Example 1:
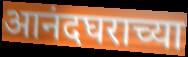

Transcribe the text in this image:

आनंदघराच्या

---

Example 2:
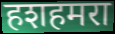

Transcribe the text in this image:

हशहमरा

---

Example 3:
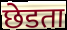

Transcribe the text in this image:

छेडता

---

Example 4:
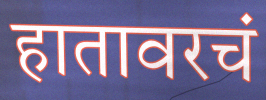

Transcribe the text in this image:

हातावरचं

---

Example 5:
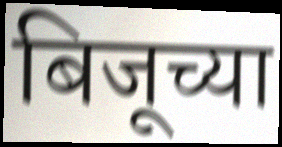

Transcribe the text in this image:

बिजूच्या